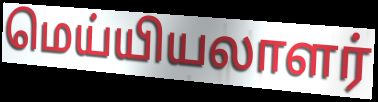
மெய்யியலாளர்